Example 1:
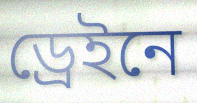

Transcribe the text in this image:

ড্রেইনে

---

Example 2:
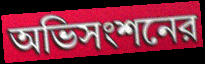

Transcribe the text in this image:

অভিসংশনের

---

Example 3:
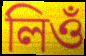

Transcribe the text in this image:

লিওঁ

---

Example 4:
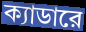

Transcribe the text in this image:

ক্যাডারে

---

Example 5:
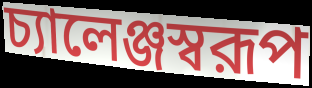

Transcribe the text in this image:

চ্যালেঞ্জস্বরূপ